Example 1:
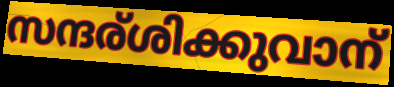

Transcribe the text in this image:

സന്ദര്ശിക്കുവാന്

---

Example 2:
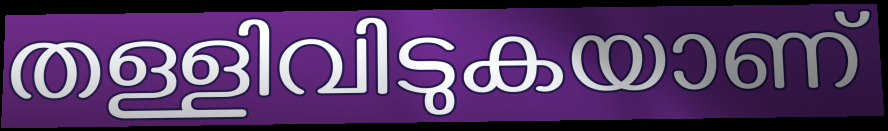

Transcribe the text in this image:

തള്ളിവിടുകയാണ്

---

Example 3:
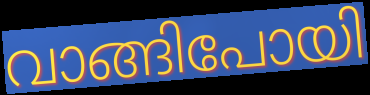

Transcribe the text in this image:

വാങ്ങിപോയി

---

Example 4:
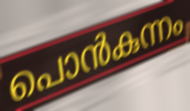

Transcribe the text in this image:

പൊൻകുന്നം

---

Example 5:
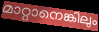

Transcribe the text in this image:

മാറ്റാനെങ്കിലും